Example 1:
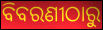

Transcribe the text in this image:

ବିବରଣୀଠାରୁ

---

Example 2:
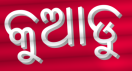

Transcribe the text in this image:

କୁଆଡୁ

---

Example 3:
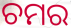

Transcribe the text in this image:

ଚମର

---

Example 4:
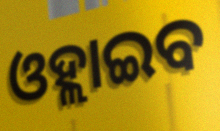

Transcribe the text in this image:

ଓହ୍ଲାଇବ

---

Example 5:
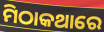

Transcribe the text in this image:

ମିଠାକଥାରେ